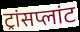
ट्रांसप्लांट